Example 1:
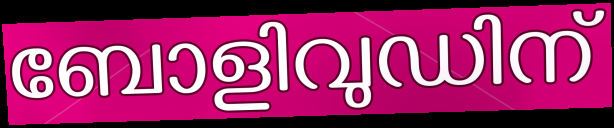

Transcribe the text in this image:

ബോളിവുഡിന്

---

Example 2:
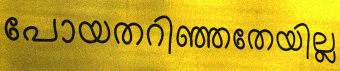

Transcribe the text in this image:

പോയതറിഞ്ഞതേയില്ല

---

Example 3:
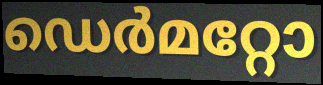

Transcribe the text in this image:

ഡെർമറ്റോ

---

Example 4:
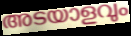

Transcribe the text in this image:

അടയാളവും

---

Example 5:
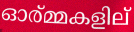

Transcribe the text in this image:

ഓര്മ്മകളില്